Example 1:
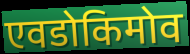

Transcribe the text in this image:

एवडोकिमोव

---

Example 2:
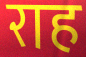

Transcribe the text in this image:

राह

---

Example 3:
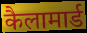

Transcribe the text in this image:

कैलामार्ड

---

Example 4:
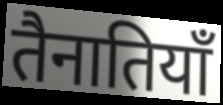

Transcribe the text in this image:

तैनातियाँ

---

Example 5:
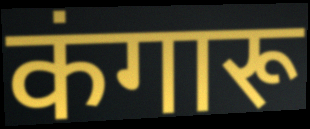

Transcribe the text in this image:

कंगारू